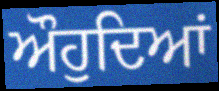
ਔਹੁਦਿਆਂ